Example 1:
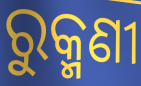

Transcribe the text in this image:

ରୁକ୍ମଣୀ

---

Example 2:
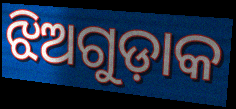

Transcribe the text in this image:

ଝିଅଗୁଡ଼ାକ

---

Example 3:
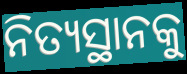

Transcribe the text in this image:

ନିତ୍ୟସ୍ଥାନକୁ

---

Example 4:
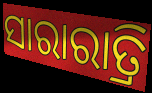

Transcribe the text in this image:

ସାରାରାତ୍ରି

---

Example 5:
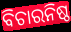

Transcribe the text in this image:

ବିଚାରନିଷ୍ଠ